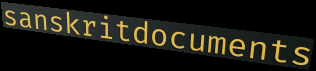
sanskritdocuments